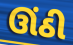
ઊંઠી